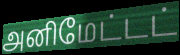
அனிமேட்டட்